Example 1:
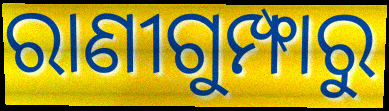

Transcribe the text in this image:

ରାଣୀଗୁମ୍ଫାରୁ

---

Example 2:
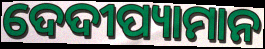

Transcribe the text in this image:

ଦେଦୀପ୍ୟାମାନ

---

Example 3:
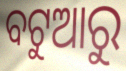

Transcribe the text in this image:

ବଟୁଆରୁ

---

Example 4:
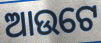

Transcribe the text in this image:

ଆଉଟେ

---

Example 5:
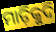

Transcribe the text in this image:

ମାଡ଼ିକୁଦି